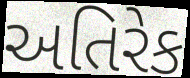
અતિરેક